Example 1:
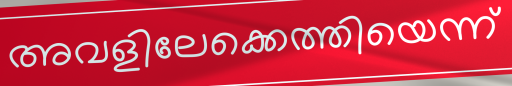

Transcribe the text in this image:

അവളിലേക്കെത്തിയെന്ന്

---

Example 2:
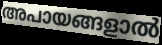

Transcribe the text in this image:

അപായങ്ങളാൽ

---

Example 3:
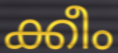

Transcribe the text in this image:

ക്കീം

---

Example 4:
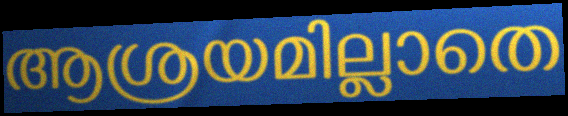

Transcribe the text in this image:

ആശ്രയമില്ലാതെ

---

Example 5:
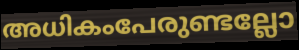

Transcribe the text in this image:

അധികംപേരുണ്ടല്ലോ